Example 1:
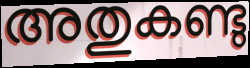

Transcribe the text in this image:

അതുകണ്ടു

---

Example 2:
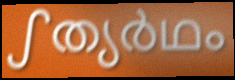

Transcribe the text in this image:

ഽത്യർഥം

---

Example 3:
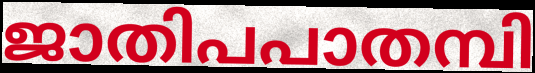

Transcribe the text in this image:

ജാതിപപാതമ്പി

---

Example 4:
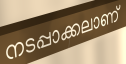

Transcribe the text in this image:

നടപ്പാക്കലാണ്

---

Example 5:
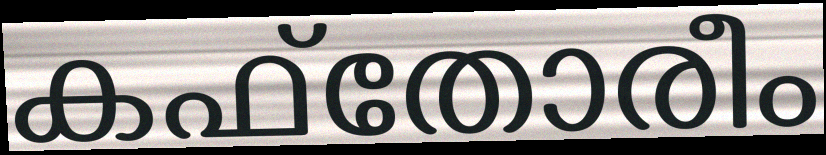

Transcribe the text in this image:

കഫ്തോരീം